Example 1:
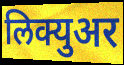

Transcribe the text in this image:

लिक्युअर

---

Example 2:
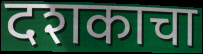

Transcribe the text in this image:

दशकाचा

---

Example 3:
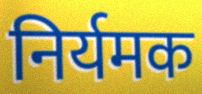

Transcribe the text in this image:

निर्यमक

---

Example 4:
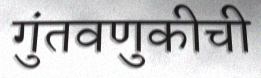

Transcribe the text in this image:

गुंतवणुकीची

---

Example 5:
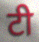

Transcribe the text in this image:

टी